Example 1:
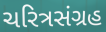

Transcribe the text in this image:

ચરિત્રસંગ્રહ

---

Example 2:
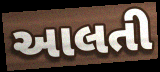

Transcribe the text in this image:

આલતી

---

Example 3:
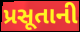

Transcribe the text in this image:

પ્રસૂતાની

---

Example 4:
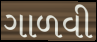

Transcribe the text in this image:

ગાળવી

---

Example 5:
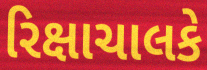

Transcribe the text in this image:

રિક્ષાચાલકે